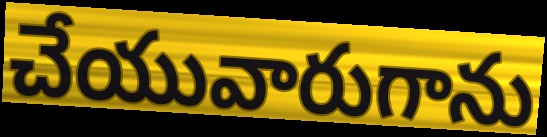
చేయువారుగాను